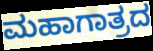
ಮಹಾಗಾತ್ರದ